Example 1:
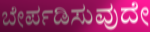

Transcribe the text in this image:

ಬೇರ್ಪಡಿಸುವುದೇ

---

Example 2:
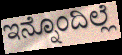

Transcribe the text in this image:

ಇನ್ನೊಂದಿಲ್ಲೆ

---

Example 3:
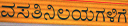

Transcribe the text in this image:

ವಸತಿನಿಲಯಗಳಿಗೆ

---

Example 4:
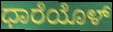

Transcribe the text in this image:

ಧಾರೆಯೊಳ್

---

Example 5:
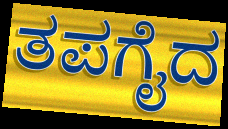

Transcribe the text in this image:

ತಪಗೈದ